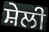
ਸ਼ੇਲੀ